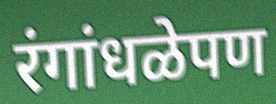
रंगांधळेपण